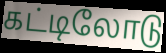
கட்டிலோடு